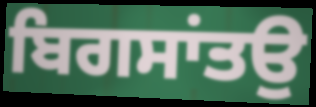
ਬਿਗਸਾਂਤਉ